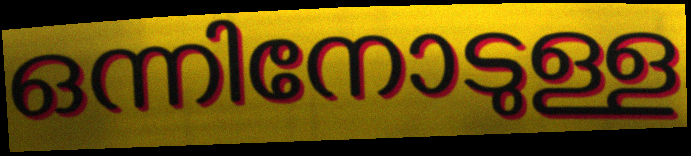
ഒന്നിനോടുള്ള